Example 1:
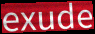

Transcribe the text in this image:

exude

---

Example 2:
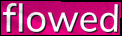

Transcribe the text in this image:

flowed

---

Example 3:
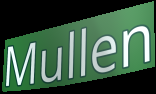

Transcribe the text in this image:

Mullen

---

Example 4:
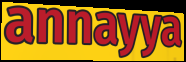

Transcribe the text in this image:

annayya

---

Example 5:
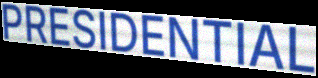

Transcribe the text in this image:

PRESIDENTIAL